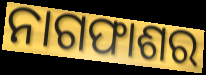
ନାଗଫାଶର